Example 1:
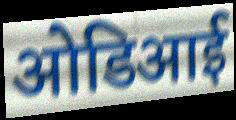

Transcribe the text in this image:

ओडिआई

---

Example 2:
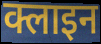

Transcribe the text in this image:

क्लाइन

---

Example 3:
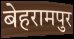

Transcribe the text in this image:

बेहरामपुर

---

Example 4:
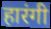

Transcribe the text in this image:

हारंगी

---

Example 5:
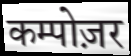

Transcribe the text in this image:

कम्पोज़र